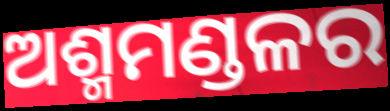
ଅଶ୍ମମଣ୍ଡଳର